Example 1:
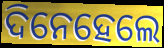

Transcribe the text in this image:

ଦିନେହେଲେ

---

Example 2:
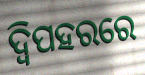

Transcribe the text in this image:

ଦ୍ୱିପହରରେ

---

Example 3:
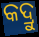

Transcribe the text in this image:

କଦ୍ରୁ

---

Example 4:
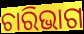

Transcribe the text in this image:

ଚାରିଭାଗ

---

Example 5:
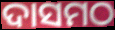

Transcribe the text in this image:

ଦାସମଠ